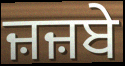
ਜ਼ਜ਼ਬੇ